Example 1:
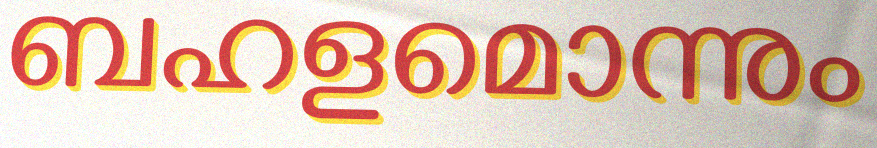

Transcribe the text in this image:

ബഹളമൊന്നും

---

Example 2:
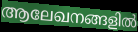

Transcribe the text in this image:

ആലേഖനങ്ങളിൽ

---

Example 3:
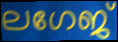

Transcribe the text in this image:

ലഗേജ്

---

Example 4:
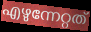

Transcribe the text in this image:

എഴുന്നേറ്റത്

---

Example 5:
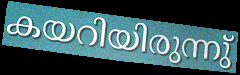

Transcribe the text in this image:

കയറിയിരുന്നു്